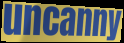
uncanny